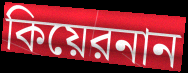
কিয়েরনান